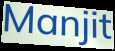
Manjit